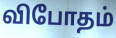
விபோதம்